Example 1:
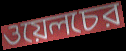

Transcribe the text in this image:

ওয়েলচের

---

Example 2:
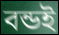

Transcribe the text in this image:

বন্ডই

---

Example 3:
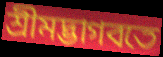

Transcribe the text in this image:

শ্রীমদ্ভাগবতে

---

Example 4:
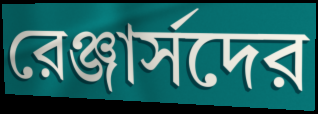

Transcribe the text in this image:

রেঞ্জার্সদের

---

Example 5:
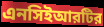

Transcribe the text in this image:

এনসিইআরটির